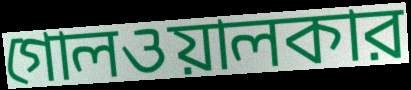
গোলওয়ালকার